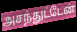
அசந்துட்டேன்